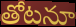
తోటనూ